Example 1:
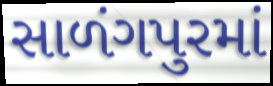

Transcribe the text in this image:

સાળંગપુરમાં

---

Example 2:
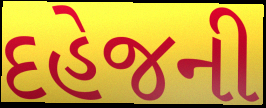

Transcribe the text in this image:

દહેજની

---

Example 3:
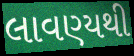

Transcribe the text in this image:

લાવણ્યથી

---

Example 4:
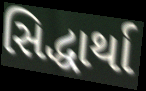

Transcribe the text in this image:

સિદ્ધાર્થા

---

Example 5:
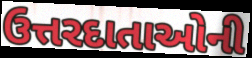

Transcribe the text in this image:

ઉત્તરદાતાઓની